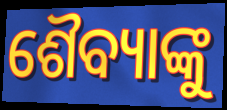
ଶୈବ୍ୟାଙ୍କୁ